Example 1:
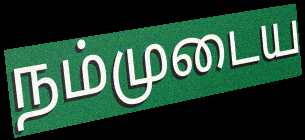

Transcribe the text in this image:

நம்முடைய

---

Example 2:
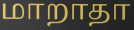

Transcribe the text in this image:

மாறாதா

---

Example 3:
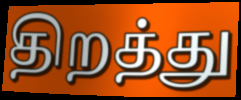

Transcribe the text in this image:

திறத்து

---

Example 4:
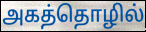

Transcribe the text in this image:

அகத்தொழில்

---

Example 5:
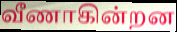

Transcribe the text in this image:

வீணாகின்றன